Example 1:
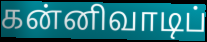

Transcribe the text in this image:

கன்னிவாடிப்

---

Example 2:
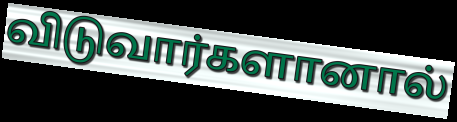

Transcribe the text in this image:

விடுவார்களானால்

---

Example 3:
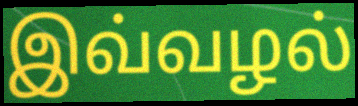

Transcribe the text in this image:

இவ்வழல்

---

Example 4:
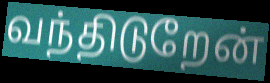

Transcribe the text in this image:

வந்திடுறேன்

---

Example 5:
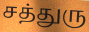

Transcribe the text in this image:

சத்துரு